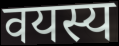
वयस्य